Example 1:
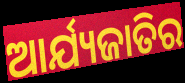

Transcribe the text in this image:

ଆର୍ଯ୍ୟଜାତିର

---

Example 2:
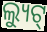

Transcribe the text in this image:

ଲ୍ୟୁଟ୍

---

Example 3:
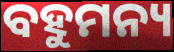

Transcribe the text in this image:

ବହୁମନ୍ୟ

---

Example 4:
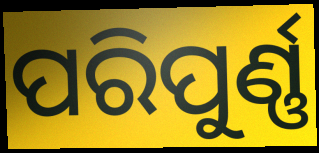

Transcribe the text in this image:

ପରିପୁର୍ଣ୍ଣ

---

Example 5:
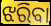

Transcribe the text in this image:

ଝରିବା